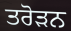
ਤਰੋੜਨ